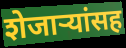
शेजाऱ्यांसह